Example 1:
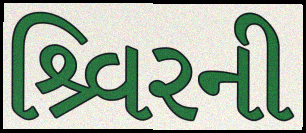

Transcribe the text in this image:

શ્ર્વિરની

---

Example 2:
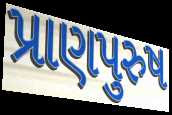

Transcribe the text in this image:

પ્રાણપુરુષ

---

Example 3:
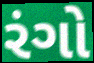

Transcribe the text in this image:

રંગો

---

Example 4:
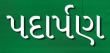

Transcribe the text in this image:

પદાર્પણ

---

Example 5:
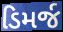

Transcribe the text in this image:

ડિમર્જ